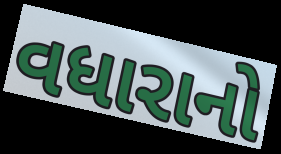
વધારાનો